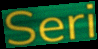
Seri